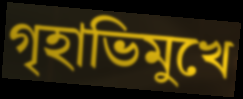
গৃহাভিমুখে